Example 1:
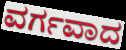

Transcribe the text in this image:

ವರ್ಗವಾದ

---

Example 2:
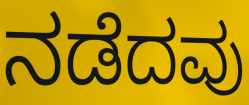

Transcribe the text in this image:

ನಡೆದವು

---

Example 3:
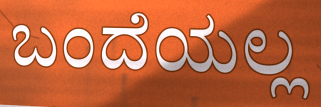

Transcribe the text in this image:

ಬಂದೆಯಲ್ಲ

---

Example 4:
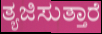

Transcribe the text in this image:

ತ್ಯಜಿಸುತ್ತಾರೆ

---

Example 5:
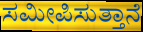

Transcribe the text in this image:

ಸಮೀಪಿಸುತ್ತಾನೆ